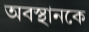
অবস্থানকে